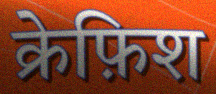
क्रेफ़िश